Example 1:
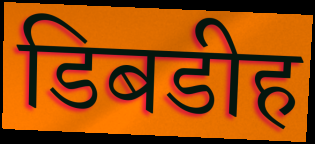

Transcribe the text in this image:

डिबडीह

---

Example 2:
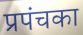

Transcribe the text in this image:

प्रपंचका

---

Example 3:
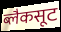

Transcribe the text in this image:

ब्लैकसूट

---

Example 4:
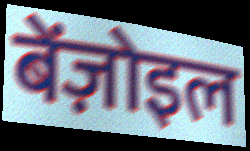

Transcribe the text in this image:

बेंज़ोइल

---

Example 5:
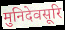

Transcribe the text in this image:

मुनिदेवसूरि